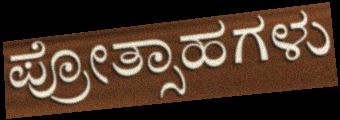
ಪ್ರೋತ್ಸಾಹಗಳು